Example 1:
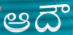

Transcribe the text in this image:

ఆదౌ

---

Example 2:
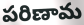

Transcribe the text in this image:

పరిణామ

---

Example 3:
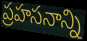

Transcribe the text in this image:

ప్రహసనాన్ని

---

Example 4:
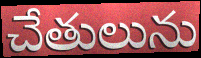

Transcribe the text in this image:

చేతులును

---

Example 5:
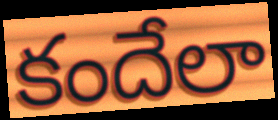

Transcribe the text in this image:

కందేలా